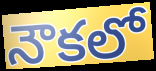
నౌకలో